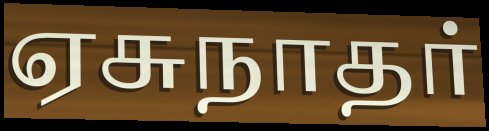
ஏசுநாதர்